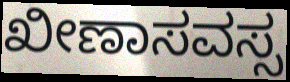
ಖೀಣಾಸವಸ್ಸ